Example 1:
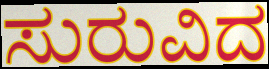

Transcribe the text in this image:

ಸುರುವಿದ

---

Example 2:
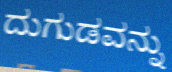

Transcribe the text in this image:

ದುಗುಡವನ್ನು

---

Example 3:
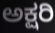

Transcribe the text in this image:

ಅಕ್ಷರಿ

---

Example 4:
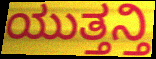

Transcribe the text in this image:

ಯುತ್ತನ್ತಿ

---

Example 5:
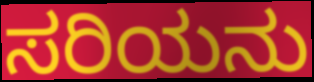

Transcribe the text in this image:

ಸರಿಯನು